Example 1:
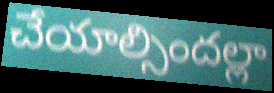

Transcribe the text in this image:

చేయాల్సిందల్లా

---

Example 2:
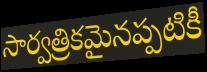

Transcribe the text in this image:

సార్వత్రికమైనప్పటికీ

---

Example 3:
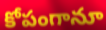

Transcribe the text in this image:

కోపంగానూ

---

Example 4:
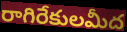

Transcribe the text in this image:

రాగిరేకులమీద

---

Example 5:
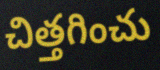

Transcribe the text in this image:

చిత్తగించు